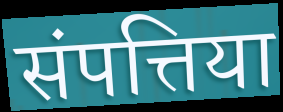
संपत्तिया